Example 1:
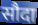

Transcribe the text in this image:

सौदा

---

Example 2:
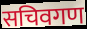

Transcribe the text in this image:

सचिवगण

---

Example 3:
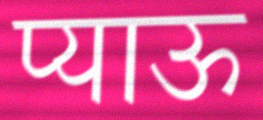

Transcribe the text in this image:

प्याऊ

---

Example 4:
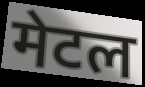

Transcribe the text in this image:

मेटल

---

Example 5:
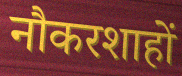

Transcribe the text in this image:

नौकरशाहों